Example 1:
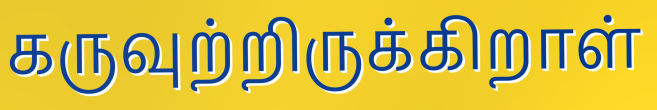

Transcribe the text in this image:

கருவுற்றிருக்கிறாள்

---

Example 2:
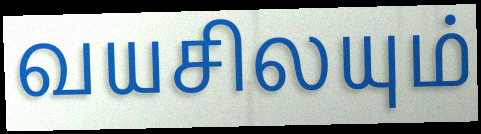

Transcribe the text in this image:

வயசிலயும்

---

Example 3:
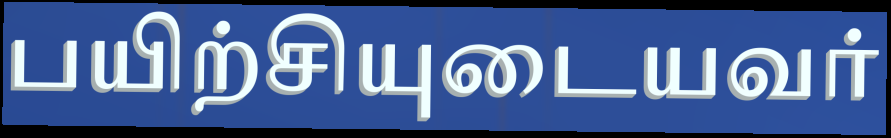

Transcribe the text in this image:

பயிற்சியுடையவர்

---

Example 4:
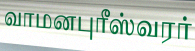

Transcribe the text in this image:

வாமனபுரீஸ்வரர்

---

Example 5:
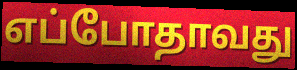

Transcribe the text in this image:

எப்போதாவது